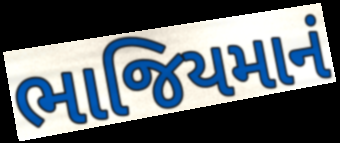
ભાજિયમાનં